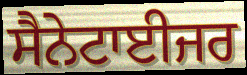
ਸੈਨੇਟਾਈਜਰ